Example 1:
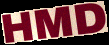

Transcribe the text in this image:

HMD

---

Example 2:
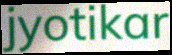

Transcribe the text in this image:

jyotikar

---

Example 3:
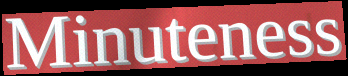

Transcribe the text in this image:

Minuteness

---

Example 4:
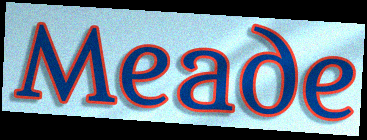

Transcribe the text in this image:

Meade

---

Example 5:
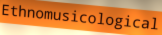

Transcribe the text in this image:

Ethnomusicological